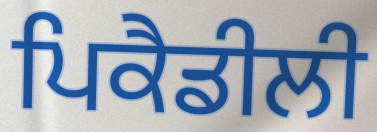
ਪਿਕੈਡੀਲੀ